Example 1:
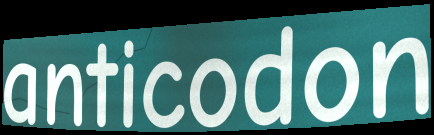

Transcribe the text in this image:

anticodon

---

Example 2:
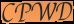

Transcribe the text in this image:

CPWD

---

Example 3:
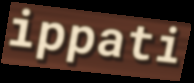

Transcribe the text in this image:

ippati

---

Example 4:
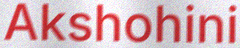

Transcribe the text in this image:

Akshohini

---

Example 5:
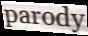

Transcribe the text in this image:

parody